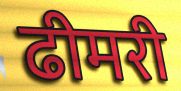
ढीमरी